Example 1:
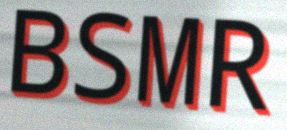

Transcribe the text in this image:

BSMR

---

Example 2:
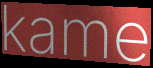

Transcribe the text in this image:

kame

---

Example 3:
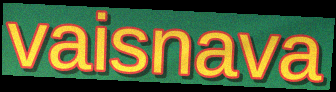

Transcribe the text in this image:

vaisnava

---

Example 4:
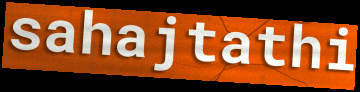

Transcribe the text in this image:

sahajtathi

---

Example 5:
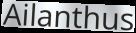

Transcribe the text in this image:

Ailanthus